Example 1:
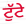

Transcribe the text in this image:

ਟੁੱਟੇ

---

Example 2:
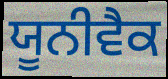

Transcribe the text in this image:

ਯੂਨੀਵੈਕ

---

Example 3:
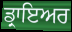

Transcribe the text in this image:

ਡ੍ਰਾਇਅਰ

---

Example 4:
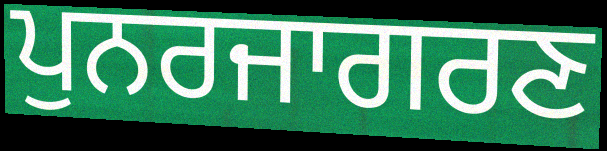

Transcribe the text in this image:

ਪੁਨਰਜਾਗਰਣ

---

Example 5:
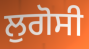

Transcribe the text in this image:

ਲੁਗੋਸੀ